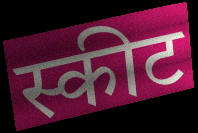
स्कीट